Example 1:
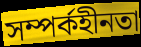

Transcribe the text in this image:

সম্পর্কহীনতা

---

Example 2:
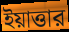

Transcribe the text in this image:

ইয়াত্তার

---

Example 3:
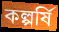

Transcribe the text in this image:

কল্পর্ষি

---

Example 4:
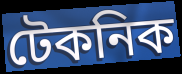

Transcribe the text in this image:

টেকনিক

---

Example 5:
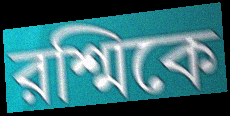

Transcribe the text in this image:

রশ্মিকে